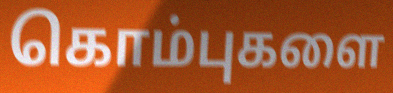
கொம்புகளை